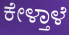
ಕೇಳ್ತಾಳೆ